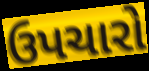
ઉપચારો